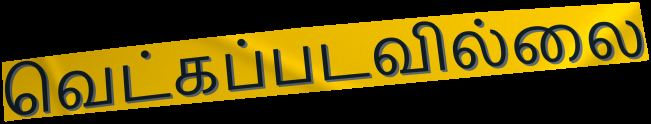
வெட்கப்படவில்லை